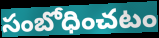
సంబోధించటం